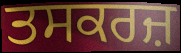
ਤਸਕਰਜ਼